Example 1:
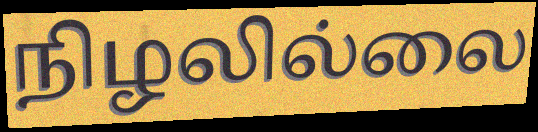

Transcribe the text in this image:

நிழலில்லை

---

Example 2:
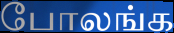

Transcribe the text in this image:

போலங்க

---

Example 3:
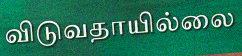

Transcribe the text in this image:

விடுவதாயில்லை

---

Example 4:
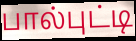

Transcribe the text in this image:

பால்புட்டி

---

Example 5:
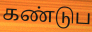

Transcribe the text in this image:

கண்டுப